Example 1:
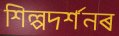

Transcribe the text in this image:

শিল্পদৰ্শনৰ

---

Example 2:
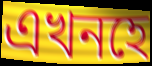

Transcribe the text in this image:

এখনহে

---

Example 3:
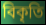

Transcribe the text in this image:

বিকৃতি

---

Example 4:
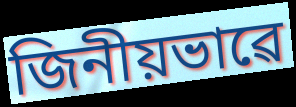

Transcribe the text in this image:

জিনীয়ভাৱে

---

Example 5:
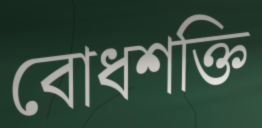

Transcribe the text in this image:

বোধশক্তি